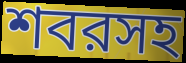
শবরসহ